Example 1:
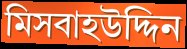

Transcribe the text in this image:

মিসবাহউদ্দিন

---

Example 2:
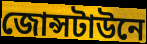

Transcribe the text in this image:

জোন্সটাউনে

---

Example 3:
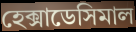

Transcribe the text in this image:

হেক্সাডেসিমাল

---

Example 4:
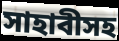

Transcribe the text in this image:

সাহাবীসহ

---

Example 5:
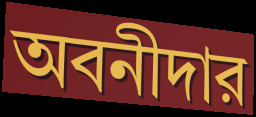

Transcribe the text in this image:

অবনীদার